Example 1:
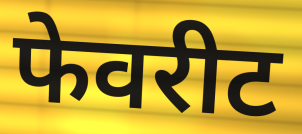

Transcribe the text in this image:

फेवरीट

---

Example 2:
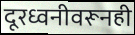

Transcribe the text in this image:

दूरध्वनीवरूनही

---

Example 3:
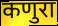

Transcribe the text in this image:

कणुरा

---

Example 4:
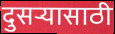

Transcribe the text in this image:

दुसऱ्यासाठी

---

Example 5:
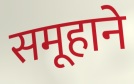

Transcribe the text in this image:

समूहाने